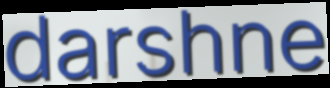
darshne